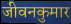
जीवनकुमार